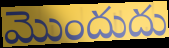
మొందుదు